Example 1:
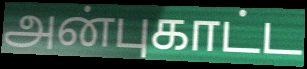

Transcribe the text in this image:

அன்புகாட்ட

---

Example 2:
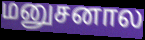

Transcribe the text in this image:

மனுசனால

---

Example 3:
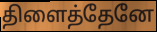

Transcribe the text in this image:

திளைத்தேனே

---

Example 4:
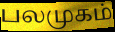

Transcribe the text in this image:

பலமுகம்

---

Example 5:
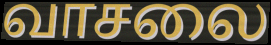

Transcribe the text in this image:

வாசலை